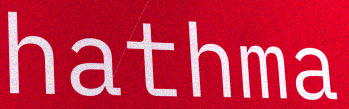
hathma